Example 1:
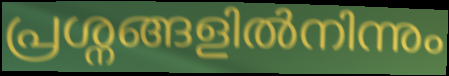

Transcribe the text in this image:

പ്രശ്നങ്ങളിൽനിന്നും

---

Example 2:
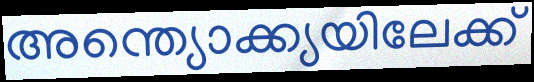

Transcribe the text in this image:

അന്ത്യൊക്ക്യയിലേക്ക്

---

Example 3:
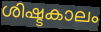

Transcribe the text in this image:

ശിഷ്ടകാലം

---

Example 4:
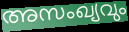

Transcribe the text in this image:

അസംഖ്യവും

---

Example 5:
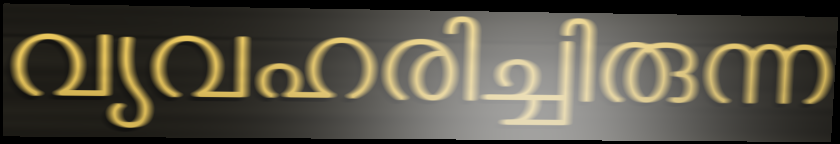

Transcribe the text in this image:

വ്യവഹരിച്ചിരുന്ന